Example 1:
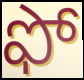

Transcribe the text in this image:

ఫో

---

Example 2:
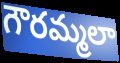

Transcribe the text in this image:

గౌరమ్మలా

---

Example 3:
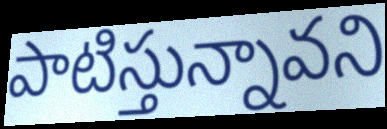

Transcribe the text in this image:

పాటిస్తున్నావని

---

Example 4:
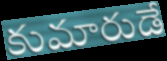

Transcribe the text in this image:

కుమారుడే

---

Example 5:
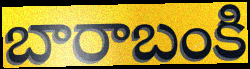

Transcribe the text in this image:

బారాబంకి